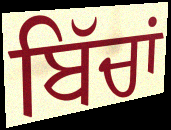
ਬਿੱਚਾਂ